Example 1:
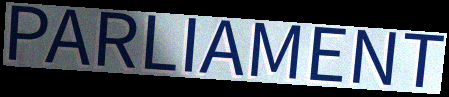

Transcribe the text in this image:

PARLIAMENT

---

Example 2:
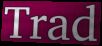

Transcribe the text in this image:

Trad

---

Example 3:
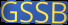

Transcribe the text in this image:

GSSB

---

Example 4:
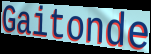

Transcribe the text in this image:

Gaitonde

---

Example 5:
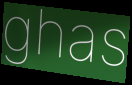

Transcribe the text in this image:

ghas